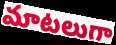
మాటలుగా